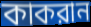
কাকরান